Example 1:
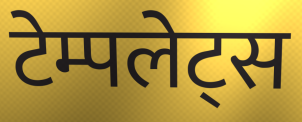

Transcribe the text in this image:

टेम्पलेट्स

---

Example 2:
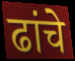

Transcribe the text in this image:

ढांचे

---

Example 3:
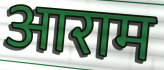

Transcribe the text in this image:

आराम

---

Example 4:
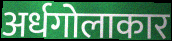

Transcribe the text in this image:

अर्धगोलाकार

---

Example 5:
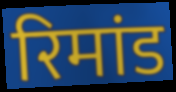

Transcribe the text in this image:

रिमांड